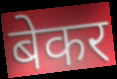
बेकर